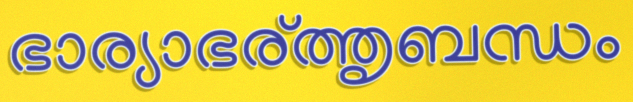
ഭാര്യാഭര്ത്തൃബന്ധം